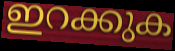
ഇറക്കുക